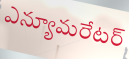
ఎన్యూమరేటర్